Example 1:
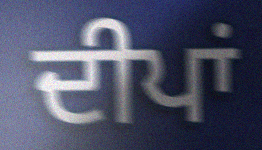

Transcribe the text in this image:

ਦੀਪਾਂ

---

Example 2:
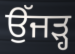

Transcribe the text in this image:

ਉੱਜੜ੍ਹ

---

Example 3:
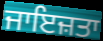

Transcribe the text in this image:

ਜਾਇਜ਼ਤਾ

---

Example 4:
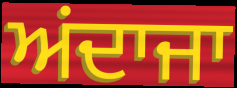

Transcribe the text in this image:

ਅਂਦਾਜਾ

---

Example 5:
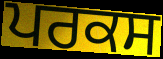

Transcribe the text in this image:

ਪਰਕਸ